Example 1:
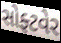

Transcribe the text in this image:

સોફ્ટવેર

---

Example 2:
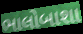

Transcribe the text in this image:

ભાલોબાશા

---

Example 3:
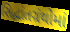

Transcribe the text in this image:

સિદ્ધાંતગ્રંથોમાં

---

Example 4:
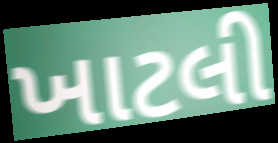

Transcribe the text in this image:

ખાટલી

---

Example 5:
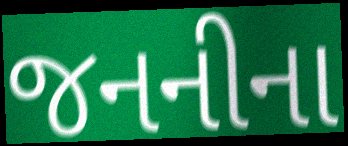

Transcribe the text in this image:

જનનીના